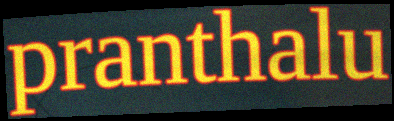
pranthalu